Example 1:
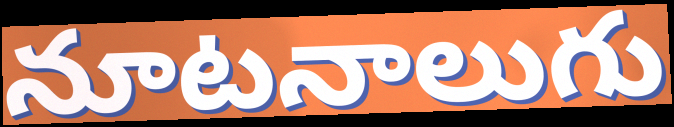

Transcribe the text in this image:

నూటనాలుగు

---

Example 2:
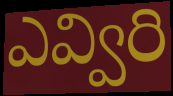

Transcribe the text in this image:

ఎవ్విరి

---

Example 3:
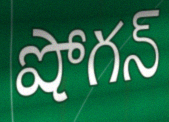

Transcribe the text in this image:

షోగన్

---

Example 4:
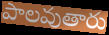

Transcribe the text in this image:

పాలవుతారు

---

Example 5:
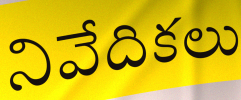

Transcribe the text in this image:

నివేదికలు